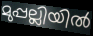
മുപ്പല്ലിയിൽ